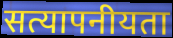
सत्यापनीयता